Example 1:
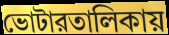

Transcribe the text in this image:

ভোটারতালিকায়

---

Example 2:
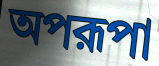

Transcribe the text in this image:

অপরূপা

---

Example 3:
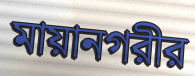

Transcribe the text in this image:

মায়ানগরীর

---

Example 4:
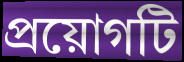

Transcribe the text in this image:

প্রয়োগটি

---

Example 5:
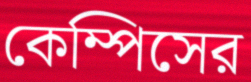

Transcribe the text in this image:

কেম্পিসের